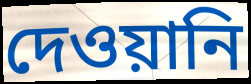
দেওয়ানি